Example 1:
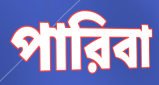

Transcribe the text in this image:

পারিবা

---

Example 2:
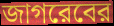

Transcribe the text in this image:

জাগরেবের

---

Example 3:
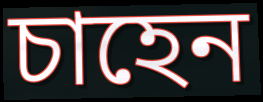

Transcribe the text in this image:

চাহেন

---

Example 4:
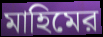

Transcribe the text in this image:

মাহিমের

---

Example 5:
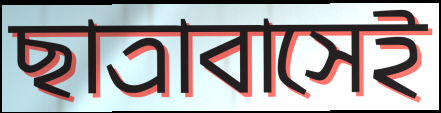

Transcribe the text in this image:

ছাত্রাবাসেই